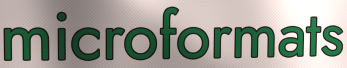
microformats